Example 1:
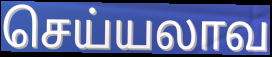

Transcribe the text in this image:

செய்யலாவ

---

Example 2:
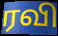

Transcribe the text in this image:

ரவி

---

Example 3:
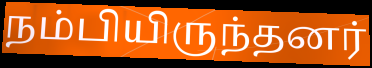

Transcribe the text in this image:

நம்பியிருந்தனர்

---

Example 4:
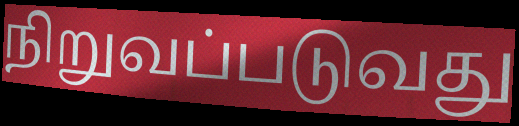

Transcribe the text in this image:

நிறுவப்படுவது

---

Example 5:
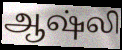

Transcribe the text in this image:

ஆஷ்லி